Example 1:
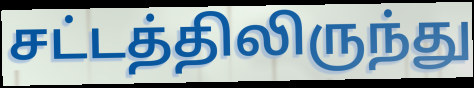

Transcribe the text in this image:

சட்டத்திலிருந்து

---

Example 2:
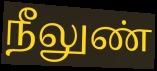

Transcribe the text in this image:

நீலுண்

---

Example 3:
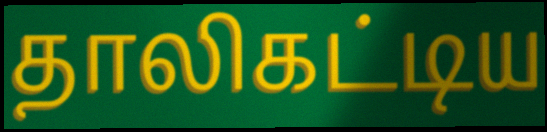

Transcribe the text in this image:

தாலிகட்டிய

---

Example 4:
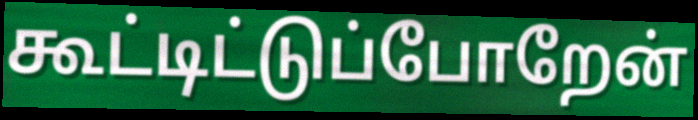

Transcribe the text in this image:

கூட்டிட்டுப்போறேன்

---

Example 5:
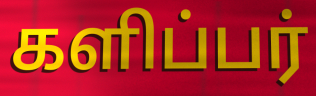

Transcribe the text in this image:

களிப்பர்